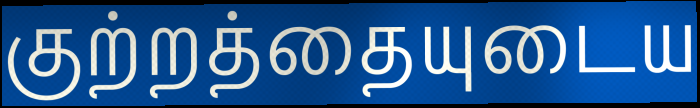
குற்றத்தையுடைய